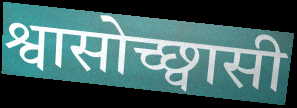
श्वासोच्छ्वासी